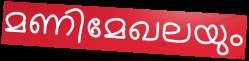
മണിമേഖലയും